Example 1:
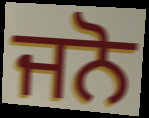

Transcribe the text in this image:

ਜਨੋ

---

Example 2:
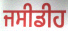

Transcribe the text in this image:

ਜਸੀਡੀਹ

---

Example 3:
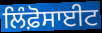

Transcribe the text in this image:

ਲਿੰਫ਼ੋਸਾਈਟ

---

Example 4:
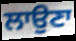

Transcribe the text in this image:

ਲਾਉਣਾ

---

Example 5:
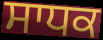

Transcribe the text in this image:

ਸਾਧਕ